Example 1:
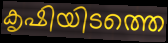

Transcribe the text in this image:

കൃഷിയിടത്തെ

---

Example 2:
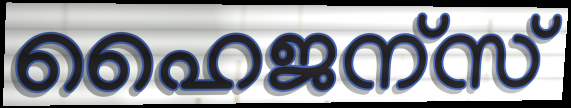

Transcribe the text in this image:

ഹൈജന്സ്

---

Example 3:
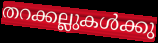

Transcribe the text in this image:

തറക്കല്ലുകൾക്കു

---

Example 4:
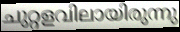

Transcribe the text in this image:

ചുറ്റളവിലായിരുന്നു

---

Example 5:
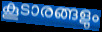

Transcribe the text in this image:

കൂടാരങ്ങളും